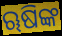
ୠଷିଙ୍କ